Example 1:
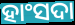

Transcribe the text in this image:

ହାଂସଦା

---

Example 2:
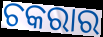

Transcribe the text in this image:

ଚକରାର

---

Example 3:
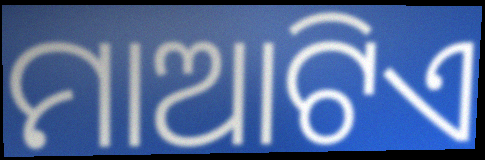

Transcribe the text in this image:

ମାଆଟିଏ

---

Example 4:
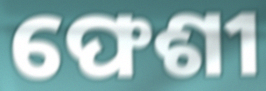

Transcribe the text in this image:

ଫେଶୀ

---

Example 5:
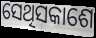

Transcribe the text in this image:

ସେଥିସକାଶେ